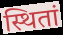
स्थितां